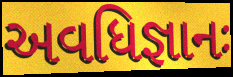
અવધિજ્ઞાનઃ